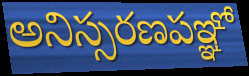
అనిస్సరణపఞ్ఞో